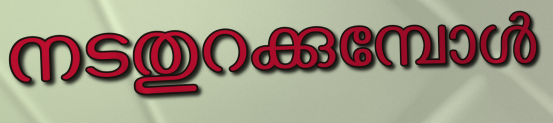
നടതുറക്കുമ്പോൾ